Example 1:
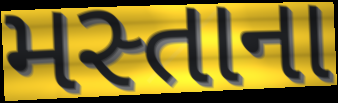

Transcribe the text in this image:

મસ્તાના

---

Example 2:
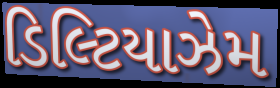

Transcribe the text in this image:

ડિલ્ટિયાઝેમ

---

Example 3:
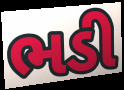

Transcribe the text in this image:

ભડી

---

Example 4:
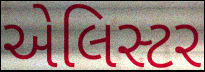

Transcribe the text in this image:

એલિસ્ટર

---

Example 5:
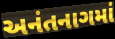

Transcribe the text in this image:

અનંતનાગમાં